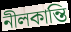
নীলকান্তি